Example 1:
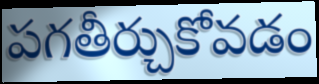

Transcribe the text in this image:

పగతీర్చుకోవడం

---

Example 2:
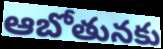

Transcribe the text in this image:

ఆబోతునకు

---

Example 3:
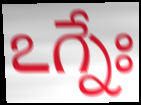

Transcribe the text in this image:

ఽగ్నేః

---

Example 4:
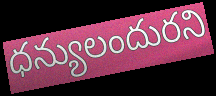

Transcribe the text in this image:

ధన్యులందురని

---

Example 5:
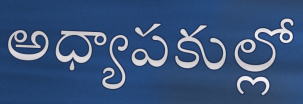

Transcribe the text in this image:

అధ్యాపకుల్లో